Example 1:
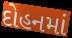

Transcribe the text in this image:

દોહનમાં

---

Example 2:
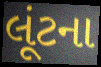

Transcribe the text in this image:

લૂંટના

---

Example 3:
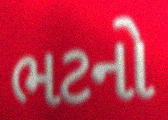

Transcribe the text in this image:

ભટનો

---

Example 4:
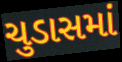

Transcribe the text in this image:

ચુડાસમાં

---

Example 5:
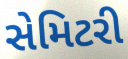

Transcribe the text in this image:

સેમિટરી